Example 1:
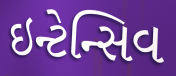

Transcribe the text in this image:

ઇન્ટેન્સિવ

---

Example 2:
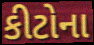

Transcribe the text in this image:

કીટોના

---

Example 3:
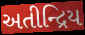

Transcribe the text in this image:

અતીન્દ્રિય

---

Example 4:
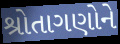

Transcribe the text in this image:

શ્રોતાગણોને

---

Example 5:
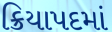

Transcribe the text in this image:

ક્રિયાપદમાં